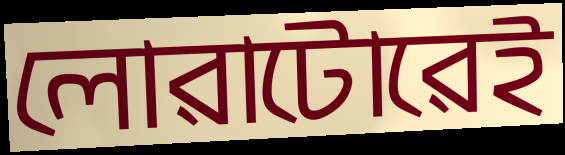
লোৱাটোৱেই